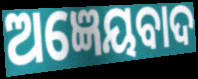
ଅଜ୍ଞେୟବାଦ